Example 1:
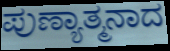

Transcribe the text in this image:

ಪುಣ್ಯಾತ್ಮನಾದ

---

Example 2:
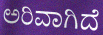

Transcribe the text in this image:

ಅರಿವಾಗಿದೆ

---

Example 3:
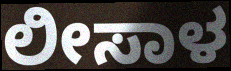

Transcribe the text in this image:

ಲೀಸಾಳ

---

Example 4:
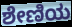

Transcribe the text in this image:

ಶೇಣಿಯ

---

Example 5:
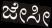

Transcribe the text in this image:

ಜೇಸೀ